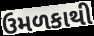
ઉમળકાથી